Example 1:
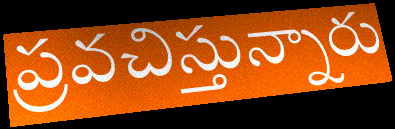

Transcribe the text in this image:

ప్రవచిస్తున్నారు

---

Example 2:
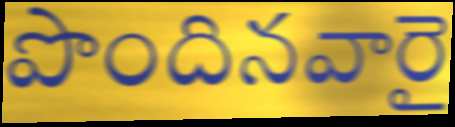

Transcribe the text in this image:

పొందినవారై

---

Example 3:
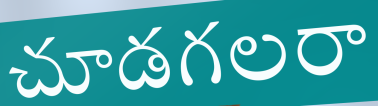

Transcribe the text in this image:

చూడగలరా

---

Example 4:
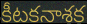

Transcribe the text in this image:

కీటకనాశక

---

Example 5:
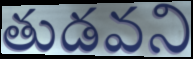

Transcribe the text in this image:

తుడవని